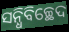
ସନ୍ଧିବିଚ୍ଛେଦ